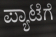
ಪ್ಯಾಟೆಗೆ